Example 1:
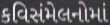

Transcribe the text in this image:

કવિસંમેલનોમાં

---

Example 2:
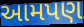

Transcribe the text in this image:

આમપણ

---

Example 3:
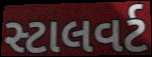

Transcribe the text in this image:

સ્ટાલવર્ટ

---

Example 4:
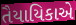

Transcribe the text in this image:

તૈયાયિકાએ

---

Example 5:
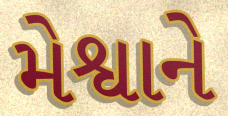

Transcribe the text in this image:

મેશ્વાને